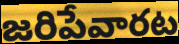
జరిపేవారట